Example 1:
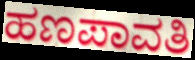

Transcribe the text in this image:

ಹಣಪಾವತಿ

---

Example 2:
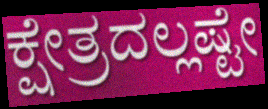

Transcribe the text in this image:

ಕ್ಷೇತ್ರದಲ್ಲಷ್ಟೇ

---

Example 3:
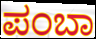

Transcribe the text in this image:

ಪಂಬಾ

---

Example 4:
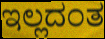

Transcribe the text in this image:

ಇಲ್ಲದಂತ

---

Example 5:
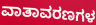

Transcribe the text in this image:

ವಾತಾವರಣಗಳ